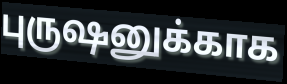
புருஷனுக்காக